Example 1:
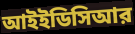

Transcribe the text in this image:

আইইডিসিআর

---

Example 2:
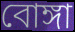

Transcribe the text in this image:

বোঙ্গা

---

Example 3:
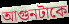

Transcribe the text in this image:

আগুনটাকে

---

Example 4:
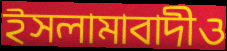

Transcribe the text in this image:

ইসলামাবাদীও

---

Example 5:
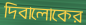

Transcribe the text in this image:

দিবালোকের